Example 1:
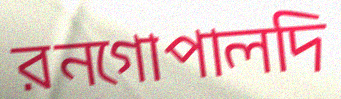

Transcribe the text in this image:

রনগোপালদি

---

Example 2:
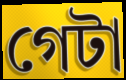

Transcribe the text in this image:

গেটা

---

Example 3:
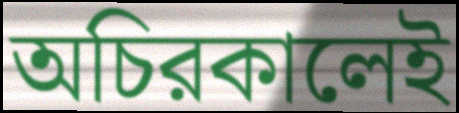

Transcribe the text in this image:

অচিরকালেই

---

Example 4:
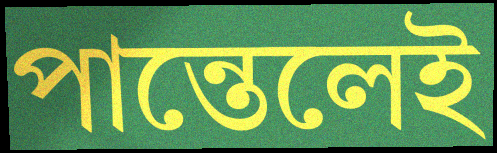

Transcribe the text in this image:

পান্তেলেই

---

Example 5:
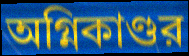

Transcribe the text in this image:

অগ্নিকাণ্ডর